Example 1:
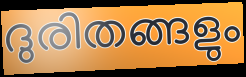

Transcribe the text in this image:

ദുരിതങ്ങളും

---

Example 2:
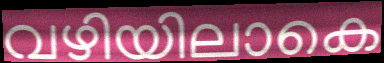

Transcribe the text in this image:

വഴിയിലാകെ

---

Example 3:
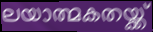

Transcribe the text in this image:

ലയാത്മകതയ്ക്ക്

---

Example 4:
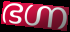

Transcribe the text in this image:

ഭഗ്ന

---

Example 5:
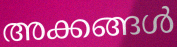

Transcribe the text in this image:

അക്കങ്ങൾ